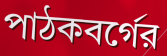
পাঠকবর্গের